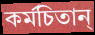
কর্মচিতান্